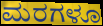
ಮರಗಳೂ